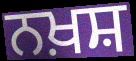
ਨਖ਼ਸ਼